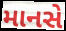
માનસે